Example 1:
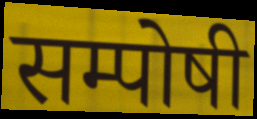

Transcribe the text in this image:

सम्पोषी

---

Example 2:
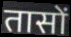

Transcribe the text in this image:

तासों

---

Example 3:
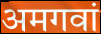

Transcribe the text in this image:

अमगवां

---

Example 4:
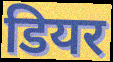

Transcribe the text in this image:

डियर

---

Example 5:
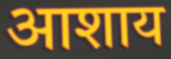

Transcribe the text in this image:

आशाय